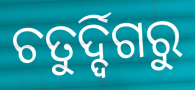
ଚତୁର୍ଦ୍ଦିଗରୁ